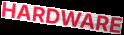
HARDWARE